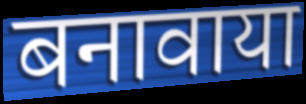
बनावाया